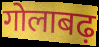
गोलाबढ़